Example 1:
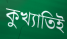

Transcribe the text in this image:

কুখ্যাতিই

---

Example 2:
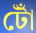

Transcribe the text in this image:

টোঁ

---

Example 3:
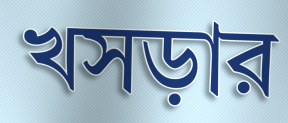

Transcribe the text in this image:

খসড়ার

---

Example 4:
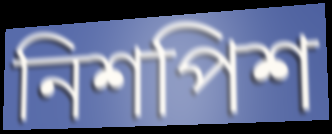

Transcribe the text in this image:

নিশপিশ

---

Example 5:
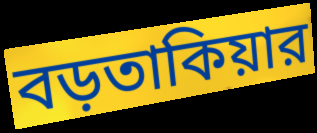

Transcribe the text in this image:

বড়তাকিয়ার